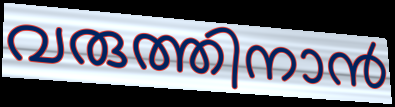
വരുത്തിനാൻ